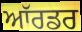
ਆੱਰਡਰ